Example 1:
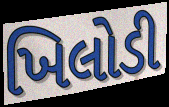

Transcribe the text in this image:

ખિલોડી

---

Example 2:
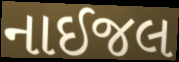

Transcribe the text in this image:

નાઈજલ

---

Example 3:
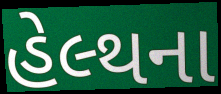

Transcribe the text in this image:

હેલ્થના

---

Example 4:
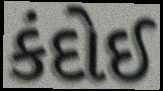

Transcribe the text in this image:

કંદોઈ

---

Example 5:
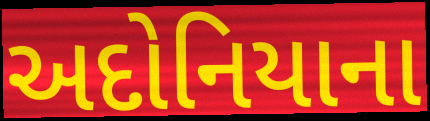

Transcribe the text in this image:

અદોનિયાના